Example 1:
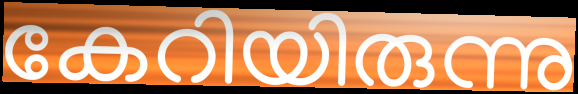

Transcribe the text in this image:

കേറിയിരുന്നു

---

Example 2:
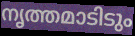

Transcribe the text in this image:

നൃത്തമാടിടും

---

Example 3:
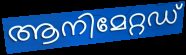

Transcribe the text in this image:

ആനിമേറ്റഡ്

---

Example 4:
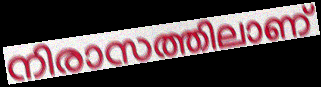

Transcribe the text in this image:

നിരാസത്തിലാണ്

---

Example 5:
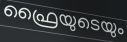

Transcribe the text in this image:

ഫ്രൈയുടെയും